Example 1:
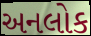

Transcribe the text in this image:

અનલોક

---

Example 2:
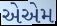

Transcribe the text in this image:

એએમ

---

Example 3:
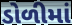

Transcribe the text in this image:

ડોળીમાં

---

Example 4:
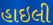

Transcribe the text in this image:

હાઇલી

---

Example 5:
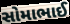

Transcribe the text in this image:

સોમાભાઈ